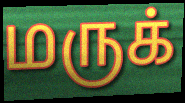
மருக்